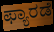
ಫ್ಯಾರಡೆ